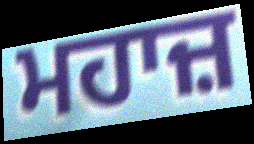
ਮਹਾਜ਼